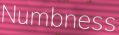
Numbness